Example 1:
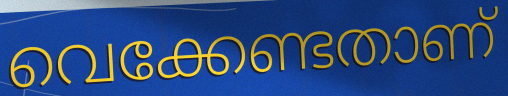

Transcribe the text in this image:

വെക്കേണ്ടതാണ്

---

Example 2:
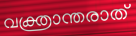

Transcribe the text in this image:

വക്ത്രാന്തരാത്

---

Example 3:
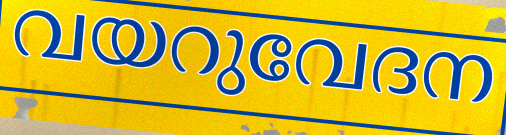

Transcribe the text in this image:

വയറുവേദന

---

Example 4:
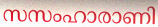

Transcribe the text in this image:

സസംഹാരാണി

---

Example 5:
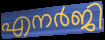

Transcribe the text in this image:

എനർജി